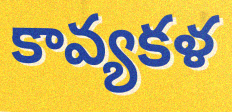
కావ్యకళ